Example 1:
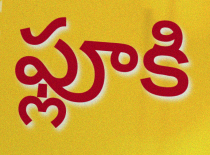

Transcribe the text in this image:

ఫ్లూకి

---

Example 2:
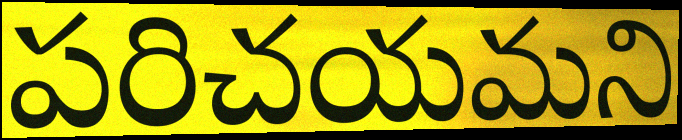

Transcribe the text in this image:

పరిచయమని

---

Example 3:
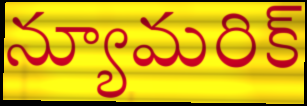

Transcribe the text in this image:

న్యూమరిక్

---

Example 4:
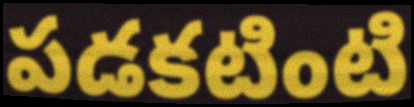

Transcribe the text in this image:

పడకటింటి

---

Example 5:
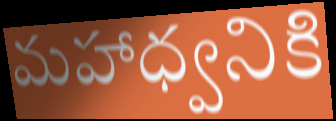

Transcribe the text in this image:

మహాధ్వనికి